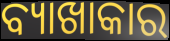
ବ୍ୟାଖାକାର